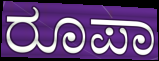
ರೂಪಾ